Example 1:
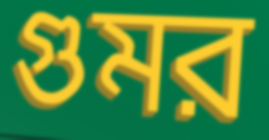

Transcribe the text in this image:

গুমর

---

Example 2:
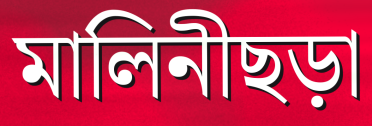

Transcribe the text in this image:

মালিনীছড়া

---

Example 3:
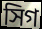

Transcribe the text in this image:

সিগ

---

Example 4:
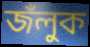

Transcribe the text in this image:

জঁলুক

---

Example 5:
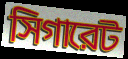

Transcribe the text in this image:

সিগারেট